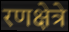
रणक्षेत्रे